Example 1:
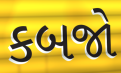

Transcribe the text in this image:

કબજો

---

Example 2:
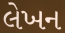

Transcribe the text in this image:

લેખન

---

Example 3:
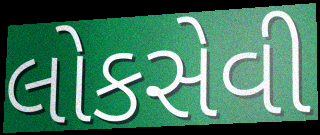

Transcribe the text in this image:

લોકસેવી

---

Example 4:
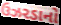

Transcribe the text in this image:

ઉઝરડાનો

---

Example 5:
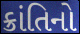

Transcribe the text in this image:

ક્રાંતિનો